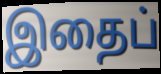
இதைப்